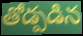
తోడ్పడిన